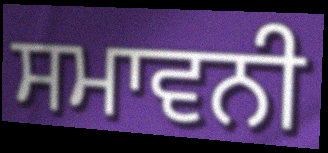
ਸਮਾਵਨੀ